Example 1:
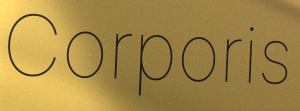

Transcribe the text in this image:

Corporis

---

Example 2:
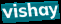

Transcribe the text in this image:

vishay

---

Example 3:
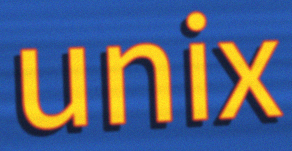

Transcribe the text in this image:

unix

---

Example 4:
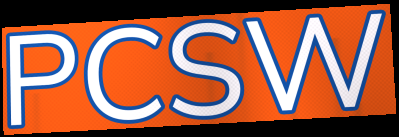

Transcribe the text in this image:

PCSW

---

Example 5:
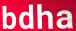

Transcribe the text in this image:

bdha